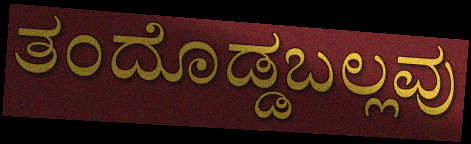
ತಂದೊಡ್ಡಬಲ್ಲವು